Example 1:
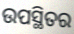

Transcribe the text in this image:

ଉପସ୍ଥିତର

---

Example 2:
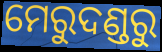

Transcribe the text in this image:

ମେରୁଦଣ୍ଡରୁ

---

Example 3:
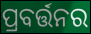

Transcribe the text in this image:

ପ୍ରବର୍ତ୍ତନର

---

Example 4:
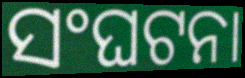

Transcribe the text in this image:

ସଂଘଟନା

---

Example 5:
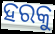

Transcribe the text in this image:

ହରକୁ